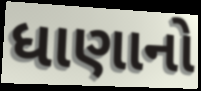
ધાણાનો